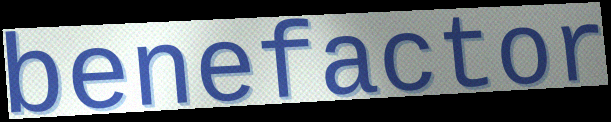
benefactor